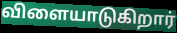
விளையாடுகிறார்